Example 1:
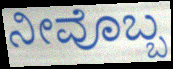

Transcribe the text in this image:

ನೀವೊಬ್ಬ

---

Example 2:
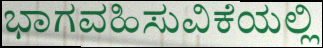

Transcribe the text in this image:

ಭಾಗವಹಿಸುವಿಕೆಯಲ್ಲಿ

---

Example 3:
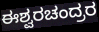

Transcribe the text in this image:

ಈಶ್ವರಚಂದ್ರರ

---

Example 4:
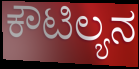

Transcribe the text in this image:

ಕೌಟಿಲ್ಯನ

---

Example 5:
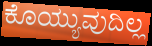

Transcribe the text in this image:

ಕೊಯ್ಯುವುದಿಲ್ಲ